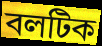
বলটিক